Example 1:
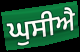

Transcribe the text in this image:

ਘੁਸੀਐ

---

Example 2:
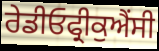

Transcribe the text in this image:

ਰੇਡੀਓਫ੍ਰੀਕੁਐਂਸੀ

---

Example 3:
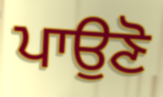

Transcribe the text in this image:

ਪਾਉਣੋ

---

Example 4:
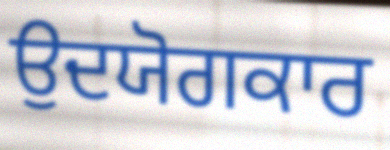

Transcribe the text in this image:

ਉਦਯੋਗਕਾਰ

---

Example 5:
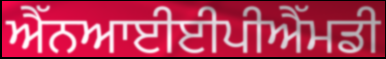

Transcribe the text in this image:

ਐੱਨਆਈਈਪੀਐੱਮਡੀ